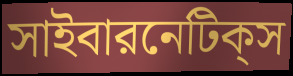
সাইবারনেটিক্‌স